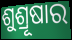
ଶୁଶ୍ରୂଷାର